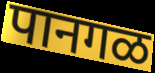
पानगळ